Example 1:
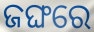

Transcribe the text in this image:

ଜଙ୍ଘରେ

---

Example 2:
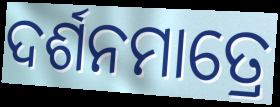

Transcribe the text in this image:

ଦର୍ଶନମାତ୍ରେ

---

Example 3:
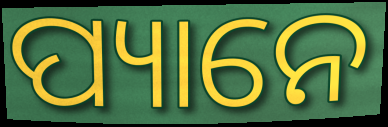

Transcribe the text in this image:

ପ୍ୟାନେ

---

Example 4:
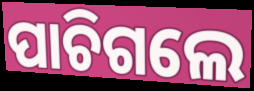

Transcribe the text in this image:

ପାଚିଗଲେ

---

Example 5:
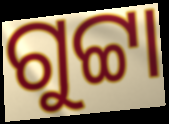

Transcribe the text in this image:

ଗୁଟ୍ଟା